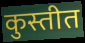
कुस्तीत